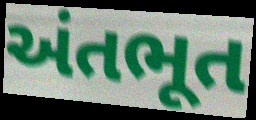
અંતભૂત